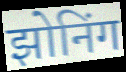
झोनिंग